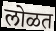
लोळत